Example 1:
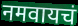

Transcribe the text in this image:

नमवायचं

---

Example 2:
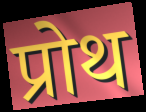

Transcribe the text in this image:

प्रोथ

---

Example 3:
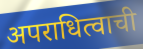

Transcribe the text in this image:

अपराधित्वाची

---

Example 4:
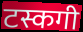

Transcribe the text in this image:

टस्कगी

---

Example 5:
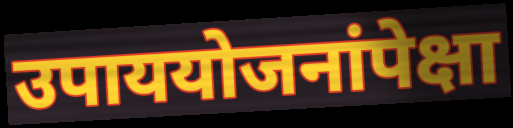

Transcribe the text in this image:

उपाययोजनांपेक्षा